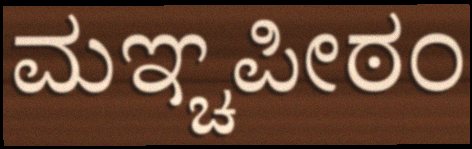
ಮಞ್ಚಪೀಠಂ